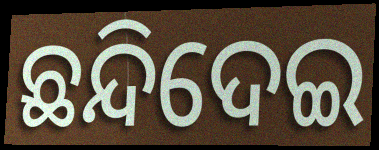
ଛନ୍ଦିଦେଇ